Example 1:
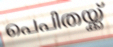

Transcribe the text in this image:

പെപിതയ്ക്ക്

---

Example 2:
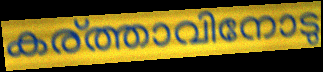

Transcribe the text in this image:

കര്ത്താവിനോടു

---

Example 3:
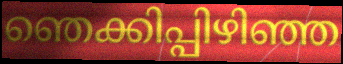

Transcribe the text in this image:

ഞെക്കിപ്പിഴിഞ്ഞ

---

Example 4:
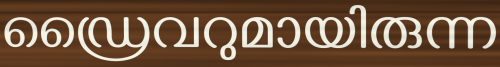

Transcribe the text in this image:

ഡ്രൈവറുമായിരുന്ന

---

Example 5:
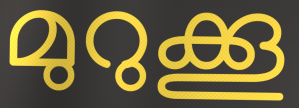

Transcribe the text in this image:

മുറുക്കൂ